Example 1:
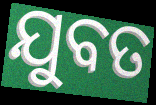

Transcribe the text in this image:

ଯୁବତ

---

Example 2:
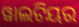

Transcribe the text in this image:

ୱାଲଟିୟର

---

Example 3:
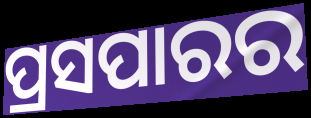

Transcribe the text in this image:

ପ୍ରସପାରର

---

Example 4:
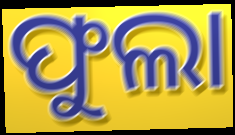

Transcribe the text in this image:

ଫୁଲା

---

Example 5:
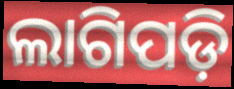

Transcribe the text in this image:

ଲାଗିପଡ଼ି